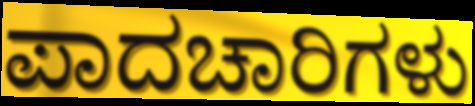
ಪಾದಚಾರಿಗಳು